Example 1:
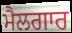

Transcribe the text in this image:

ਮੈਲਗਾਰ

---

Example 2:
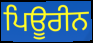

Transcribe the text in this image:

ਪਿਊਰੀਨ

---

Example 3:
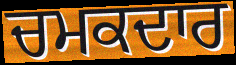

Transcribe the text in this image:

ਚਮਕਦਾਰ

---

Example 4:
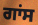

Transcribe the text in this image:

ਗਾਂਸ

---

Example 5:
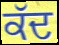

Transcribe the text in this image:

ਕੱਦ